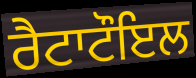
ਰੈਟਾਟੌਇਲ